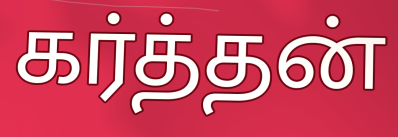
கர்த்தன்